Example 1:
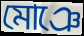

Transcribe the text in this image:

মোঞে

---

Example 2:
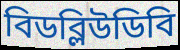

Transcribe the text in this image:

বিডব্লিউডিবি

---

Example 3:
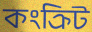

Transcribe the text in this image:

কংক্রিট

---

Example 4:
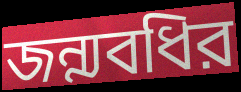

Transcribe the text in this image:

জন্মবধির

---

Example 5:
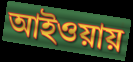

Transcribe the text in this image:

আইওয়ায়